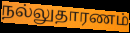
நல்லுதாரணம்